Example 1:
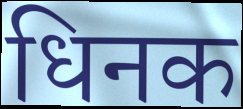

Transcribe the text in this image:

धिनक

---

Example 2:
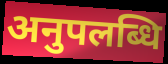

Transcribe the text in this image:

अनुपलब्धि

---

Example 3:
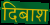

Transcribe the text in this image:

दिबाश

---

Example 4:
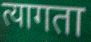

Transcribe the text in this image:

त्यागता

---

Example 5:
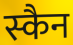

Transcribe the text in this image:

स्‍कैन